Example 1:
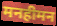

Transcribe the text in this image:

मनहीमन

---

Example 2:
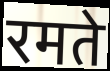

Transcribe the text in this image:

रमते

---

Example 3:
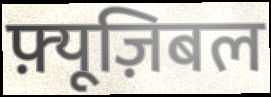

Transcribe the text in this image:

फ़्यूज़िबल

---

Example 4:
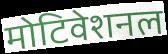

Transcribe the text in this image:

मोटिवेशनल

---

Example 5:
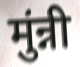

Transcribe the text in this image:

मुंन्नी